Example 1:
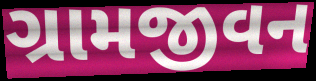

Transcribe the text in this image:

ગ્રામજીવન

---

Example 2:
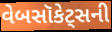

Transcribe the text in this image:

વેબસૉકેટ્સની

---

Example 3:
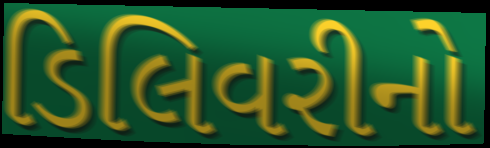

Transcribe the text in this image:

ડિલિવરીનો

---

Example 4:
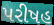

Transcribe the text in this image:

પરીષહ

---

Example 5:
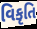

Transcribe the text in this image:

વિકૃતિ